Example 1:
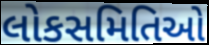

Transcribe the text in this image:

લોકસમિતિઓ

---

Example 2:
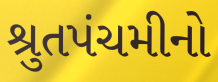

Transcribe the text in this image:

શ્રુતપંચમીનો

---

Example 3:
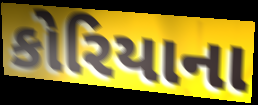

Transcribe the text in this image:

કોરિયાના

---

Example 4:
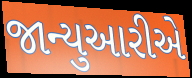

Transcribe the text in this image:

જાન્યુઆરીએ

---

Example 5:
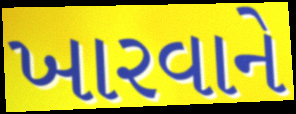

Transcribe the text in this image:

ખારવાને